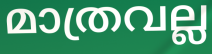
മാത്രവല്ല